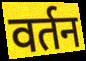
वर्तन